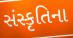
સંસ્કૃતિના